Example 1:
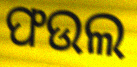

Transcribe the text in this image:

ଫଉଲ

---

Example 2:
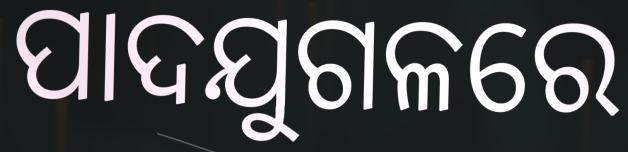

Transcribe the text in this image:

ପାଦଯୁଗଳରେ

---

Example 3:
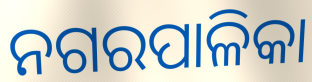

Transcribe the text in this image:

ନଗରପାଳିକା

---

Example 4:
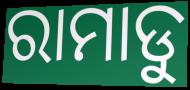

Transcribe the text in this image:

ରାମାଡୁ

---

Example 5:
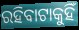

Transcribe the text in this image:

ରହିବାଟାକୁହିଁ